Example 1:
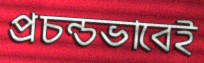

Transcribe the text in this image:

প্রচন্ডভাবেই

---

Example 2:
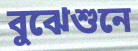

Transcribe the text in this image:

বুঝেশুনে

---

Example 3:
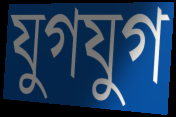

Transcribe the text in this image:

যুগযুগ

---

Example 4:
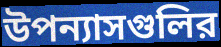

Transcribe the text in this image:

উপন্যাসগুলির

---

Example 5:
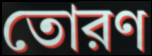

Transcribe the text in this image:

তোরণ